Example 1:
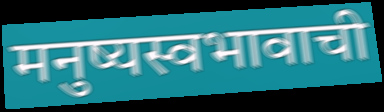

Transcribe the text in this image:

मनुष्यस्वभावाची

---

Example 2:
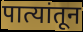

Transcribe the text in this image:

पात्यांतून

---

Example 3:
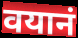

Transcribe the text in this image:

वयानं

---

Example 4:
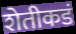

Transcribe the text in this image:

शेतीकडं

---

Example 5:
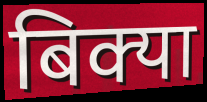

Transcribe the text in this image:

बिक्या